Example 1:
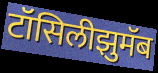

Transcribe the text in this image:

टॉसिलीझुमॅब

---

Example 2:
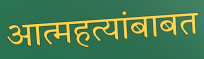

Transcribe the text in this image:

आत्महत्यांबाबत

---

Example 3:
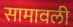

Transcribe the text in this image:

सामावली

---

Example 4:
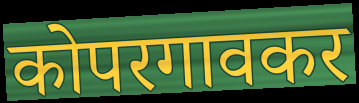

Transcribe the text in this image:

कोपरगावकर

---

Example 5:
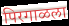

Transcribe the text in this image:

पिरगाळला